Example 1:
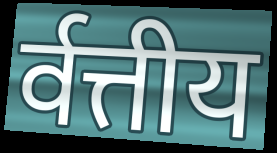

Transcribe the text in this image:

र्वत्तीय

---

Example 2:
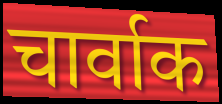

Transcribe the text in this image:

चार्वाक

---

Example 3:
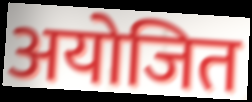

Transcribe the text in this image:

अयोजित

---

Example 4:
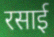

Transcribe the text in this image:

रसाई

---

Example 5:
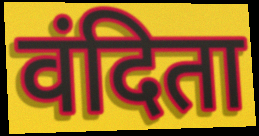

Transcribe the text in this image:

वंदिता